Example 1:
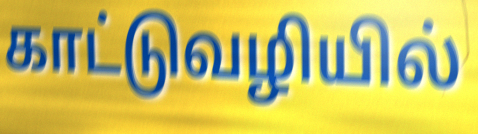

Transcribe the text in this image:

காட்டுவழியில்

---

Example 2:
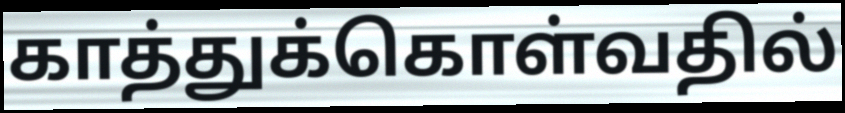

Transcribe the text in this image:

காத்துக்கொள்வதில்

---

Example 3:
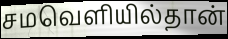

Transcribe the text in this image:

சமவெளியில்தான்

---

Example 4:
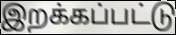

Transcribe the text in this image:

இறக்கப்பட்டு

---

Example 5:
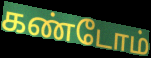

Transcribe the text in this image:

கண்டோம்